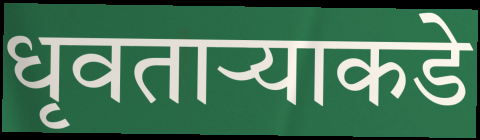
धृवतार्‍याकडे